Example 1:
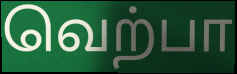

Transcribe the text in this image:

வெற்பா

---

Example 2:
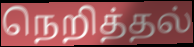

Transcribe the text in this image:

நெறித்தல்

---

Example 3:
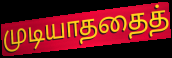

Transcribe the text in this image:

முடியாததைத்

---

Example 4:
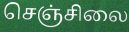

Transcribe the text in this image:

செஞ்சிலை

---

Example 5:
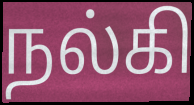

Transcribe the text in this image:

நல்கி